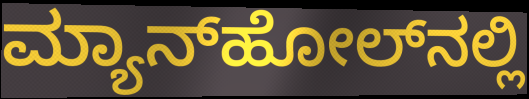
ಮ್ಯಾನ್‌ಹೋಲ್‌ನಲ್ಲಿ